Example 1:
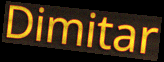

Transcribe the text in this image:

Dimitar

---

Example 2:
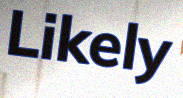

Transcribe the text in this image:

Likely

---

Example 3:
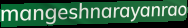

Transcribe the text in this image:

mangeshnarayanrao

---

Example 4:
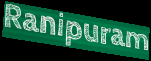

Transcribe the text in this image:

Ranipuram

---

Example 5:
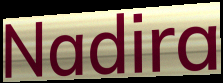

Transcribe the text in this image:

Nadira